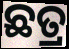
ଛତ୍ର